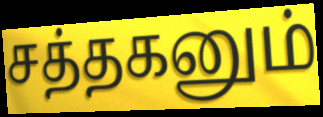
சத்தகனும்